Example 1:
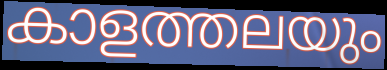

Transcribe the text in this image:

കാളത്തലയും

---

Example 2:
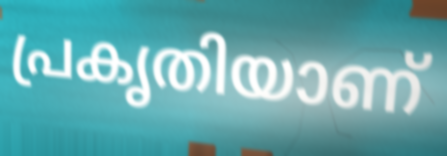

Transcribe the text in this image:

പ്രകൃതിയാണ്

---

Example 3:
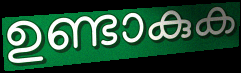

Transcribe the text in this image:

ഉണ്ടാകുക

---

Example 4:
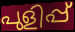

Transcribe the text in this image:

പുളിപ്പ്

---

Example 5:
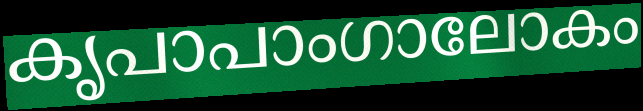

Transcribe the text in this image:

കൃപാപാംഗാലോകം